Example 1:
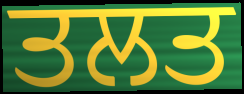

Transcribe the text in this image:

ਤਲਤ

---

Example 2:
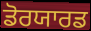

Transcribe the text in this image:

ਡੋਰਯਾਰਡ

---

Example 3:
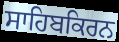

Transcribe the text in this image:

ਸਾਹਿਬਕਿਰਨ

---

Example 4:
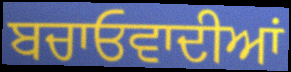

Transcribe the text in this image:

ਬਚਾਓਵਾਦੀਆਂ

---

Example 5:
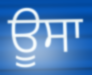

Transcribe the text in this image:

ਊਸਾ